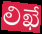
లిఖే